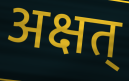
अक्षत्